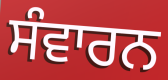
ਸੰਵਾਰਨ